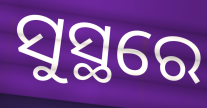
ସୁସ୍ଥରେ